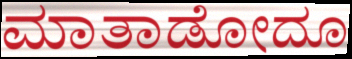
ಮಾತಾಡೋದೂ